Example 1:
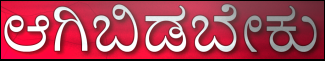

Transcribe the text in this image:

ಆಗಿಬಿಡಬೇಕು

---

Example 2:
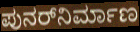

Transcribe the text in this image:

ಪುನರ್‌ನಿರ್ಮಾಣ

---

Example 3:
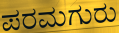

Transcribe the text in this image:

ಪರಮಗುರು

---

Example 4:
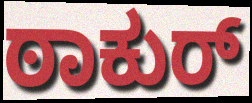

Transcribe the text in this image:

ಠಾಕುರ್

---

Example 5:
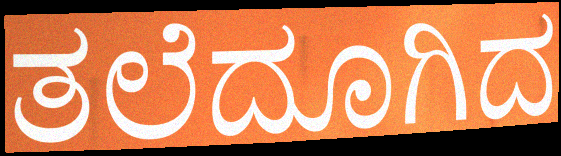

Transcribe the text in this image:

ತಲೆದೂಗಿದ